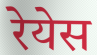
रेयेस